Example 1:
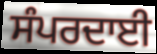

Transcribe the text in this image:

ਸੰਪਰਦਾਈ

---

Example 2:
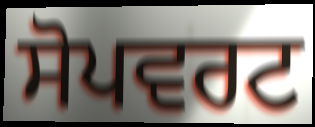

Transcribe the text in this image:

ਸੋਪਵਰਟ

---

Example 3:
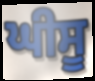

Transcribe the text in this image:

ਘੀਸੂ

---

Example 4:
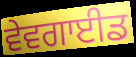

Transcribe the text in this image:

ਵੇਵਗਾਈਡ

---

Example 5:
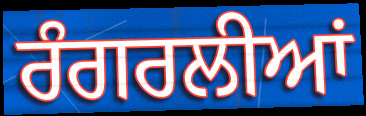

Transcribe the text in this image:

ਰੰਗਰਲੀਆਂ